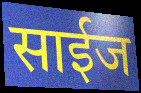
साईज